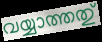
വയ്യാത്തതു്